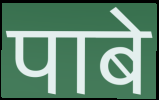
पाबे